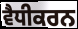
ਵੈਧੀਕਰਨ